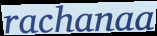
rachanaa